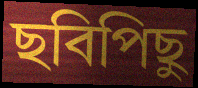
ছবিপিছু